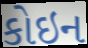
કોઇન